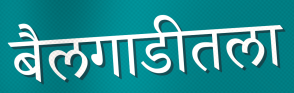
बैलगाडीतला